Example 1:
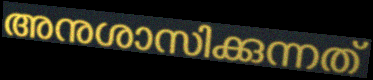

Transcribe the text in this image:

അനുശാസിക്കുന്നത്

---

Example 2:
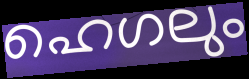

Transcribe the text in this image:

ഹെഗലും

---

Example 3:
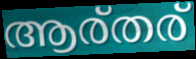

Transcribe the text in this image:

ആര്തര്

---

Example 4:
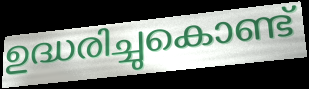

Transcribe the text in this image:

ഉദ്ധരിച്ചുകൊണ്ട്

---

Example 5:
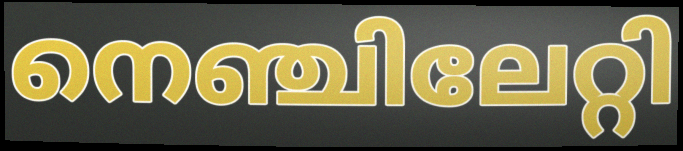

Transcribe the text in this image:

നെഞ്ചിലേറ്റി